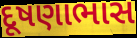
દૂષણાભાસ